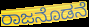
ರಾಜನೊಡನೆ